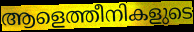
ആളെത്തീനികളുടെ